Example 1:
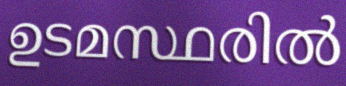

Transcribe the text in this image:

ഉടമസ്ഥരിൽ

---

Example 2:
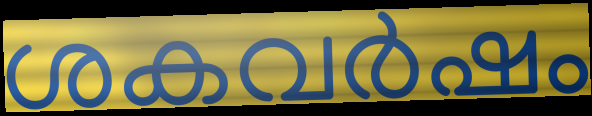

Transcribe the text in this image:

ശകവർഷം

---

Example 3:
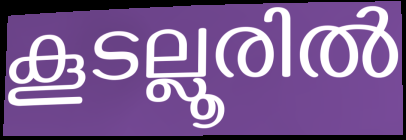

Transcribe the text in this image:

കൂടല്ലൂരിൽ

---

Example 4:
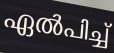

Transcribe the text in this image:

ഏൽപിച്ച്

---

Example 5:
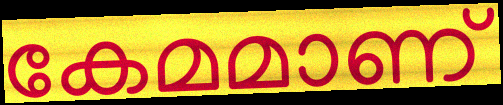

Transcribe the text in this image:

കേമമാണ്